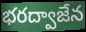
భరద్వాజేన